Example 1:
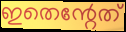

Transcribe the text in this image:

ഇതെന്റേത്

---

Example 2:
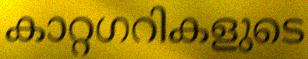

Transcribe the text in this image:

കാറ്റഗറികളുടെ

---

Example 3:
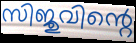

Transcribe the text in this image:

സിജുവിന്റെ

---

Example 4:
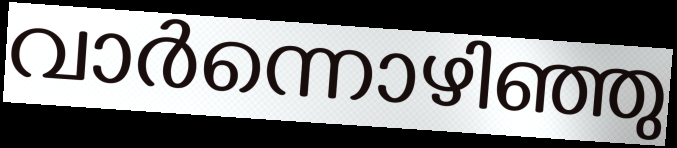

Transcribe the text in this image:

വാർന്നൊഴിഞ്ഞു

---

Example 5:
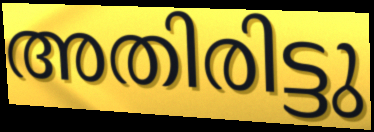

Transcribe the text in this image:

അതിരിട്ടു